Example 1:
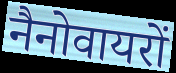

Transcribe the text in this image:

नैनोवायरों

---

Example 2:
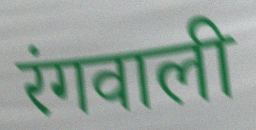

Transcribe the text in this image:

रंगवाली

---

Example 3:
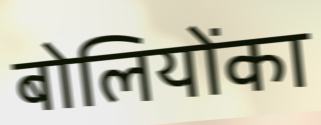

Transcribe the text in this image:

बोलियोंका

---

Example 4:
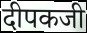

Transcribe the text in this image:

दीपकजी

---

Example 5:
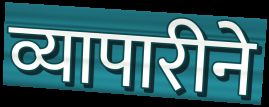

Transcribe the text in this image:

व्यापारीने